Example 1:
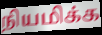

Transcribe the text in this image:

நியமிக்க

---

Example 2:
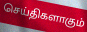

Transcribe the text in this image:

செய்திகளாகும்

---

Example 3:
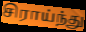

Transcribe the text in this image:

சிராய்ந்து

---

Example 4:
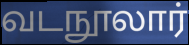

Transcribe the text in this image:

வடநூலார்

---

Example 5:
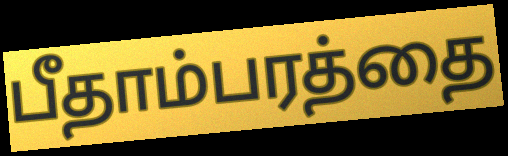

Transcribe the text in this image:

பீதாம்பரத்தை